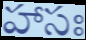
హాసః